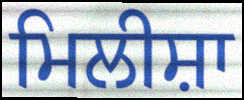
ਮਿਲੀਸ਼ਾ